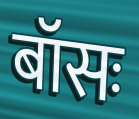
बॉसः